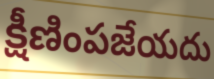
క్షీణింపజేయదు